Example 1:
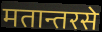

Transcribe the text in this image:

मतान्तरसे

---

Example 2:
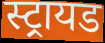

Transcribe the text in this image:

स्ट्रायड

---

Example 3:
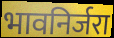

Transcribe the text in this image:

भावनिर्जरा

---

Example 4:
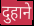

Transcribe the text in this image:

दुहाने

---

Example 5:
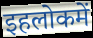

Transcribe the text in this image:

इहलोकमें